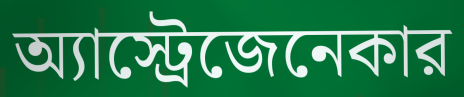
অ্যাস্ট্রেজেনেকার